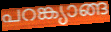
പറങ്ക്യാങ്ങ